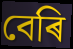
বেৰি